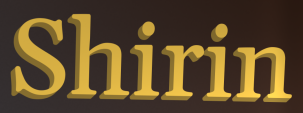
Shirin